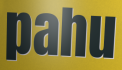
pahu